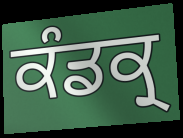
ਕੰਡਕ੍ਰ